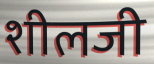
शीलजी